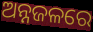
ଅନ୍ନଜଳରେ